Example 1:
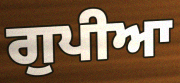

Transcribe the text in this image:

ਗੁਪੀਆ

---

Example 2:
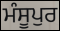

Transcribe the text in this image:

ਮੰਸੂਪੁਰ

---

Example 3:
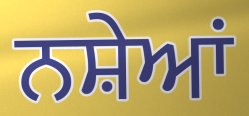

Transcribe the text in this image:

ਨਸ਼ੇਆਂ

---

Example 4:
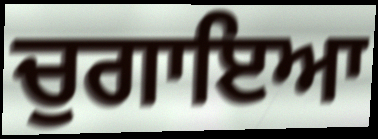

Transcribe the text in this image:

ਚੁਗਾਇਆ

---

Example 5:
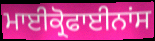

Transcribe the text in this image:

ਮਾਈਕ੍ਰੋਫਾਈਨਾਂਸ